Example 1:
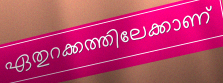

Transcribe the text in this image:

ഏതുറക്കത്തിലേക്കാണ്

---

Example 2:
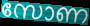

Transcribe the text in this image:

സോണ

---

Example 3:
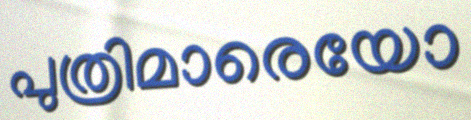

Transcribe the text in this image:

പുത്രിമാരെയോ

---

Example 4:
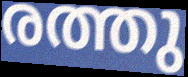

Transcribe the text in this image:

രത്തു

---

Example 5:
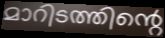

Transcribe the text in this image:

മാറിടത്തിന്റെ